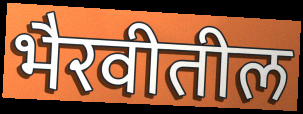
भैरवीतील